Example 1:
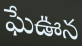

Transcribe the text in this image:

ఘేఊన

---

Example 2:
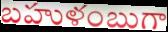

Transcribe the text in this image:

బహుళంబుగా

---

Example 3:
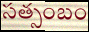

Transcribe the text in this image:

సత్సంబం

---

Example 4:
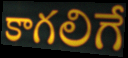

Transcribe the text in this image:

కాగలిగే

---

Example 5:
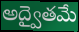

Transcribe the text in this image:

అద్వైతమే